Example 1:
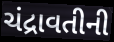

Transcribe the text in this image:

ચંદ્રાવતીની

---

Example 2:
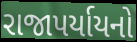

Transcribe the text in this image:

રાજાપર્યાયનો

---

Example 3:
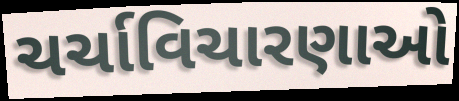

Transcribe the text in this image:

ચર્ચાવિચારણાઓ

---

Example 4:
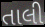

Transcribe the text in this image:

તાલી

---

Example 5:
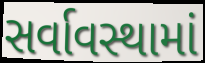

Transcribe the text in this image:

સર્વાવસ્થામાં